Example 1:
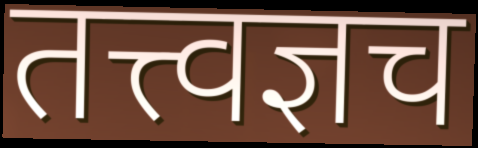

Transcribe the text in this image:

तत्त्वज्ञच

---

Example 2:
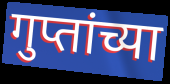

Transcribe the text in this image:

गुप्तांच्या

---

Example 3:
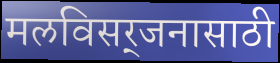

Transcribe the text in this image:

मलविसर्जनासाठी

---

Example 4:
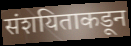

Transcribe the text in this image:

संशयिताकडून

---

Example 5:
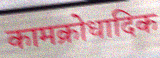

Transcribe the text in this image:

कामक्रोधादिक